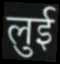
लुई